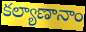
కల్యాణానాం